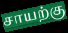
சாயற்கு